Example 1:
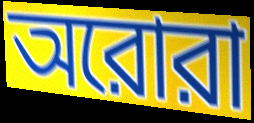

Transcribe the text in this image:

অরোরা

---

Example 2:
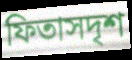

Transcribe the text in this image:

ফিতাসদৃশ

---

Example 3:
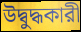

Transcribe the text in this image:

উদ্বুদ্ধকারী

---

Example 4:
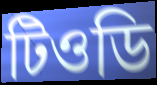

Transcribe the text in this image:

টিওডি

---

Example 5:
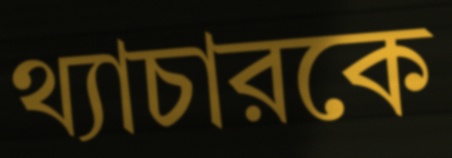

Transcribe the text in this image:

থ্যাচারকে